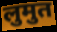
लुमुत